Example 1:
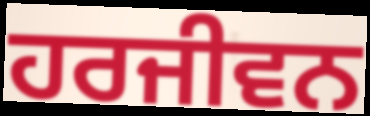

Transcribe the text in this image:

ਹਰਜੀਵਨ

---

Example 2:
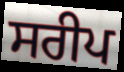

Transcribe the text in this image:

ਸਰੀਪ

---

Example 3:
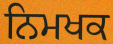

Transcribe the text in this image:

ਨਿਮਖਕ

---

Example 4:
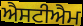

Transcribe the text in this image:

ਐਸਟੀਐਮ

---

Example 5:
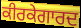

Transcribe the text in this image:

ਕੀਰਕੇਗਾਰਦ